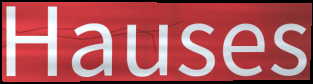
Hauses